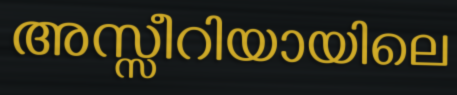
അസ്സീറിയായിലെ